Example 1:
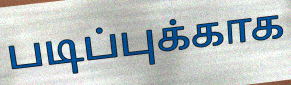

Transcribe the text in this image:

படிப்புக்காக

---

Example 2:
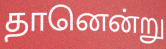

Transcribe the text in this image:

தானென்று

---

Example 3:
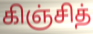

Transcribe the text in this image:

கிஞ்சித்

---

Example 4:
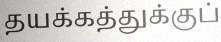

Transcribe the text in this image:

தயக்கத்துக்குப்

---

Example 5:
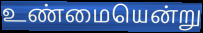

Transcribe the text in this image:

உண்மையென்று